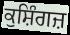
ਕੁਸ਼ਿੰਗਜ਼